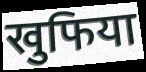
खुफिया